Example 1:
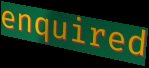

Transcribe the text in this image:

enquired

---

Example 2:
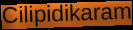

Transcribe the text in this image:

Cilipidikaram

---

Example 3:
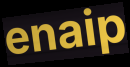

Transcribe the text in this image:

enaip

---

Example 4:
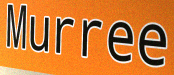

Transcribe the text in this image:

Murree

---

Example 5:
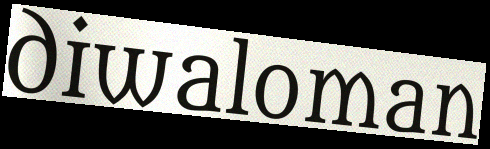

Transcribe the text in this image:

diwaloman